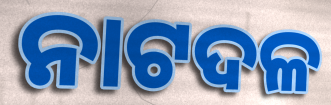
ନାଟଦଳ